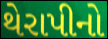
થેરાપીનો